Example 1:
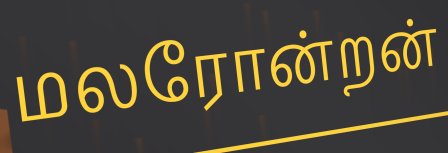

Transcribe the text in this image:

மலரோன்றன்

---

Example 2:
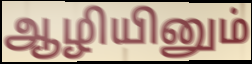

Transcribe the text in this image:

ஆழியினும்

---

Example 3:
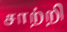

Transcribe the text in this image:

சாற்றி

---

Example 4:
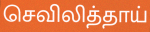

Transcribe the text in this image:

செவிலித்தாய்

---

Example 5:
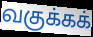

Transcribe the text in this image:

வகுக்கக்